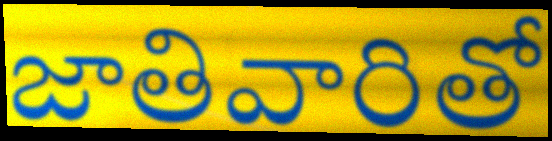
జాతివారితో